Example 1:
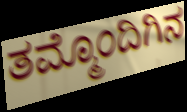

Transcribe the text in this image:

ತಮ್ಮೊಂದಿಗಿನ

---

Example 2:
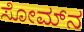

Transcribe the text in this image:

ಸೋಮ್‍ನ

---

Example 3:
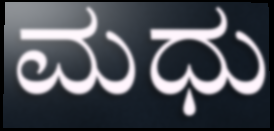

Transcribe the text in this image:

ಮಧು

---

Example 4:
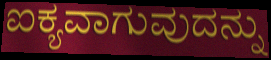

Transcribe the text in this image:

ಐಕ್ಯವಾಗುವುದನ್ನು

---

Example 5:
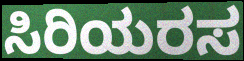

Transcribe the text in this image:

ಸಿರಿಯರಸ